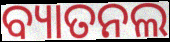
ବ୍ୟାତନଲ